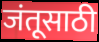
जंतूसाठी